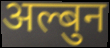
अल्बुन